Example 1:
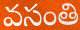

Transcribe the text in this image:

వసంతి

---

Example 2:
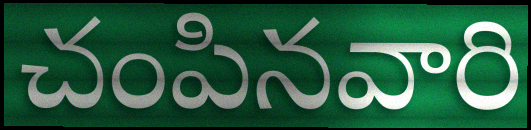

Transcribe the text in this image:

చంపినవారి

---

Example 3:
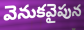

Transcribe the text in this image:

వెనుకవైపున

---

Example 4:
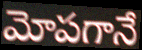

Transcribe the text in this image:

మోపగానే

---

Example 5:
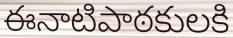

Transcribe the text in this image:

ఈనాటిపాఠకులకి